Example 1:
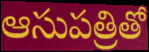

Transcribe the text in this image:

ఆసుపత్రితో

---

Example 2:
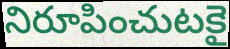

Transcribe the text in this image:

నిరూపించుటకై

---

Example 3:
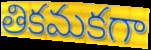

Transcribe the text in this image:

తికమకగా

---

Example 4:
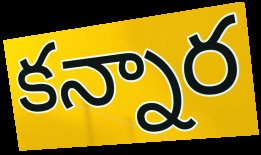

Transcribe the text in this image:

కన్నార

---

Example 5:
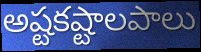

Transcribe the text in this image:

అష్టకష్టాలపాలు